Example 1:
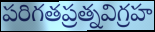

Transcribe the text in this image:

పరిగతప్రత్నవిగ్రహ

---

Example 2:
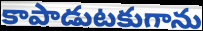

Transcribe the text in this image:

కాపాడుటకుగాను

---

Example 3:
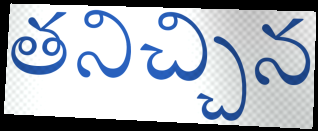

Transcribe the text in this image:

తనిచ్చిన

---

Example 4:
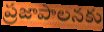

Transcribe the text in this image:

ప్రజాపాలనకు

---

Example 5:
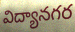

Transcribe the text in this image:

విద్యానగర